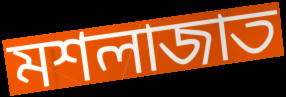
মশলাজাত